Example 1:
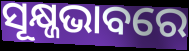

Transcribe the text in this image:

ସୂକ୍ଷ୍ଜଭାବରେ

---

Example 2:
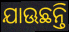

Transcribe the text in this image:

ଯାଊଛନ୍ତି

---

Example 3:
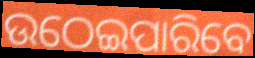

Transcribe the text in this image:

ଉଠେଇପାରିବେ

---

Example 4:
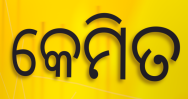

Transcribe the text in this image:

କେମିତ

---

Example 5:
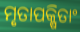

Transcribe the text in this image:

ମୃତାପକ୍ଷିତାଂ